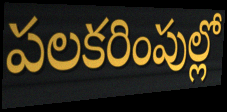
పలకరింపుల్లో